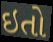
ઇતો